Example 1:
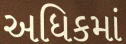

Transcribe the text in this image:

અધિકમાં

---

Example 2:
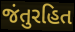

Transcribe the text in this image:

જંતુરહિત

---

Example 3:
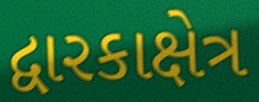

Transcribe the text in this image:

દ્વારકાક્ષેત્ર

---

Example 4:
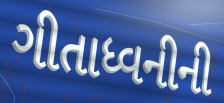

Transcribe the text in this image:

ગીતાધ્વનીની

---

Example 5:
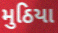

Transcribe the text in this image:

મુઠિયા